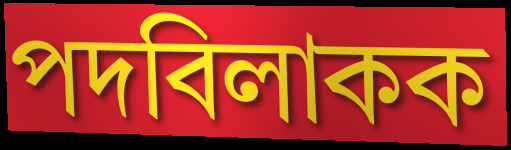
পদবিলাকক